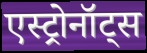
एस्ट्रोनॉट्स